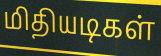
மிதியடிகள்